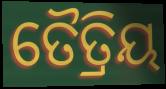
ତୈତ୍ରିୟ